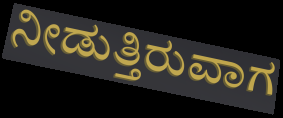
ನೀಡುತ್ತಿರುವಾಗ